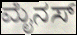
ಮೈನಸ್